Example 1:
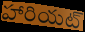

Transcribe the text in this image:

హారియట్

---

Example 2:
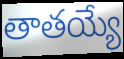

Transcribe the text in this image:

తాతయ్యే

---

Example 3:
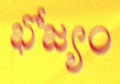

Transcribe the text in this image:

భోజ్యం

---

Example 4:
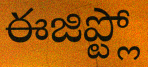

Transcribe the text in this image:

ఈజిప్ట్లో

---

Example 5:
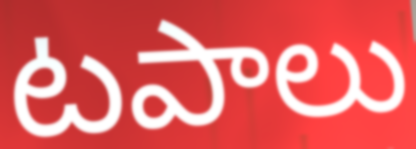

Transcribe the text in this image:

టపాలు